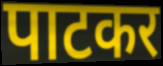
पाटकर